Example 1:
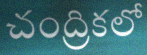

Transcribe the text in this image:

చంద్రికలో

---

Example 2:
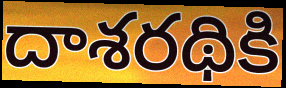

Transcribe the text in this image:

దాశరథికి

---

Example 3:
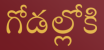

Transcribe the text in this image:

గోడల్లోకి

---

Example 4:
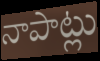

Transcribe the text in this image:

నాపాట్లు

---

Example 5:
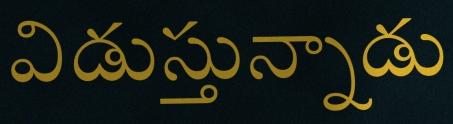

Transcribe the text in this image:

విడుస్తున్నాడు